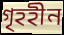
গৃহহীন